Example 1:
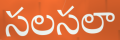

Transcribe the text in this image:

సలసలా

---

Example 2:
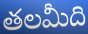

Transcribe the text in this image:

తలమీది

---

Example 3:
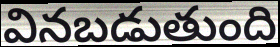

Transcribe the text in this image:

వినబడుతుంది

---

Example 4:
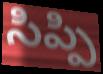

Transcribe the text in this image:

సిప్పి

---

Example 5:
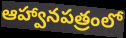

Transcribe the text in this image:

ఆహ్వానపత్రంలో